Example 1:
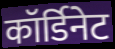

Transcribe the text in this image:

कॉर्डिनेट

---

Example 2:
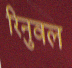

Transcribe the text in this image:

रिनुवल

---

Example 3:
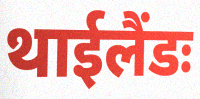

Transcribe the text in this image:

थाईलैंडः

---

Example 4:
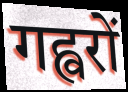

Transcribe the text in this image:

गह्वरों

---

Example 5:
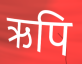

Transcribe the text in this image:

ऋपि